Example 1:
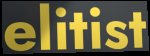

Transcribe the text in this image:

elitist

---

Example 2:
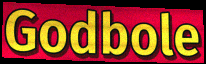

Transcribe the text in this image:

Godbole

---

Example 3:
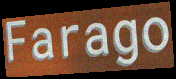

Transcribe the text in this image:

Farago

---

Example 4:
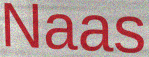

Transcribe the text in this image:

Naas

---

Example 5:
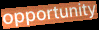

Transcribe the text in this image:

opportunity